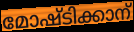
മോഷ്ടിക്കാന്